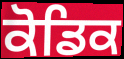
ਕੋਡਿਕ